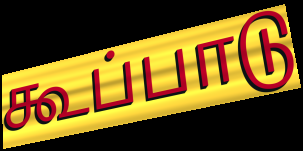
கூப்பாடு